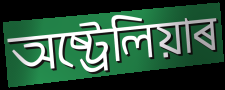
অষ্ট্ৰেলিয়াৰ